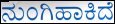
ನುಂಗಿಹಾಕಿದೆ